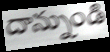
దాన్నుండి